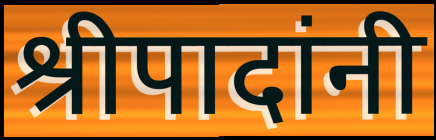
श्रीपादांनी